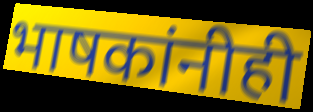
भाषकांनीही